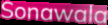
Sonawala